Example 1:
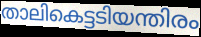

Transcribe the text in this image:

താലികെട്ടടിയന്തിരം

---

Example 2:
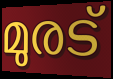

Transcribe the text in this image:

മുരട്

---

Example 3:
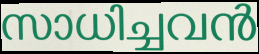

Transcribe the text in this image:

സാധിച്ചവൻ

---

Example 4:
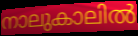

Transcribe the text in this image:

നാലുകാലിൽ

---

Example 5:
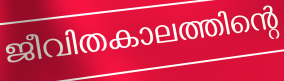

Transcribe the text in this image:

ജീവിതകാലത്തിന്റെ